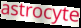
astrocyte